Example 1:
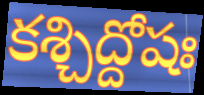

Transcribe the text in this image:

కశ్చిద్దోషః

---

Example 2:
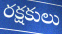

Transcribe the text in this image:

రక్షకులు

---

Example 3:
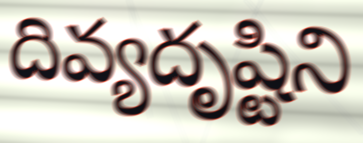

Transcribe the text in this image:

దివ్యదృష్టిని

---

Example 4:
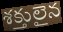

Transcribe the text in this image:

శక్తులైన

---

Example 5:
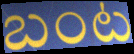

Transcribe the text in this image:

బంట